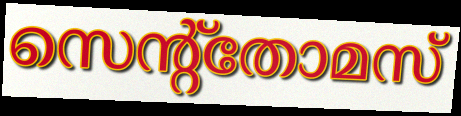
സെന്റ്തോമസ്